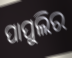
ପାପୁଲିର